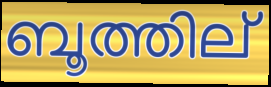
ബൂത്തില്